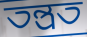
তন্ত্ৰত